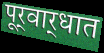
पूर्वार्धात